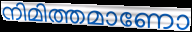
നിമിത്തമാണോ